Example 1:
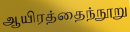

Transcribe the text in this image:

ஆயிரத்தைந்நூறு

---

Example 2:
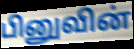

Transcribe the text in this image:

பினுவின்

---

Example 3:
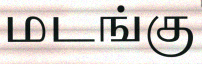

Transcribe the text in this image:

மடங்கு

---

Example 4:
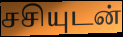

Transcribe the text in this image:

சசியுடன்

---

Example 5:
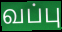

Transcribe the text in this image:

வப்பு